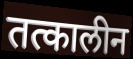
तत्कालीन